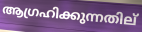
ആഗ്രഹിക്കുന്നതില്